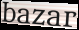
bazar